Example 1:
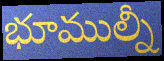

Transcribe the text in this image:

భూముల్నీ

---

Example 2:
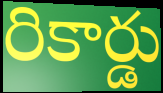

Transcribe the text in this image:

రికార్డు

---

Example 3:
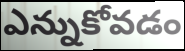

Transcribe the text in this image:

ఎన్నుకోవడం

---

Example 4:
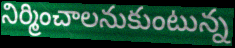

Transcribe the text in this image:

నిర్మించాలనుకుంటున్న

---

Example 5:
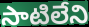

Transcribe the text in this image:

సాటిలేని